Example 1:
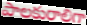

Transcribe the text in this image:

పాలకురాలిగా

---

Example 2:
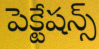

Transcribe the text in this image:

పెక్టేషన్స్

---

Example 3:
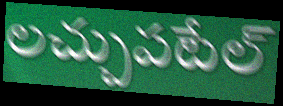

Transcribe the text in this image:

లచ్చుపటేల్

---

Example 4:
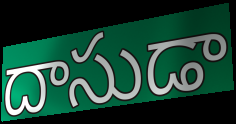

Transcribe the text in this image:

దాసుడా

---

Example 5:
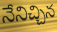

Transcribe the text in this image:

నేనిచ్చిన